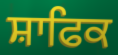
ਸ਼ਾਫਿਕ